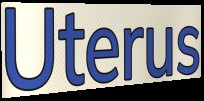
Uterus